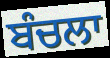
ਬੰਚਲਾ